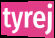
tyrej